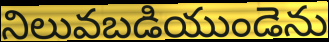
నిలువబడియుండెను